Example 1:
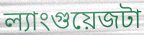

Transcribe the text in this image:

ল্যাংগুয়েজটা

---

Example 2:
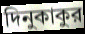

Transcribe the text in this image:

দিনুকাকুর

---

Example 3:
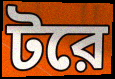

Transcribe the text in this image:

টরে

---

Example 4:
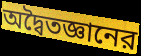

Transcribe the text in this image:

অদ্বৈতজ্ঞানের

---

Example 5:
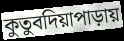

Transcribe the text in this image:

কুতুবদিয়াপাড়ায়